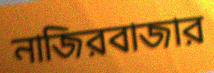
নাজিরবাজার